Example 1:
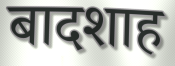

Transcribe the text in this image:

बादशाह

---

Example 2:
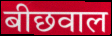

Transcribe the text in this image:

बीछवाल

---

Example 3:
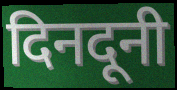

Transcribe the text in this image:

दिनदूनी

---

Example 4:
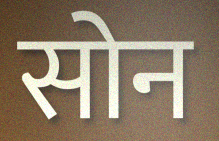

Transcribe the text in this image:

सोन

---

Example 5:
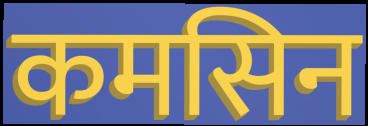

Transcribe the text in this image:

कमसिन